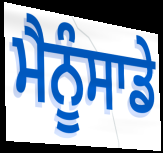
ਮੈਨੂੰਸਾਡੇ